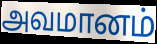
அவமானம்